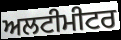
ਅਲਟੀਮੀਟਰ